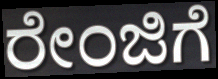
ರೇಂಜಿಗೆ